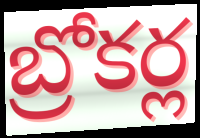
బ్రోకర్ల